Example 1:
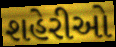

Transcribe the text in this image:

શહેરીઓ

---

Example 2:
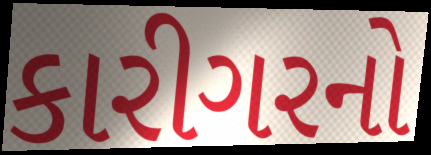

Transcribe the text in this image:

કારીગરનો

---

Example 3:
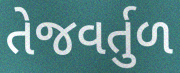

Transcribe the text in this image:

તેજવર્તુળ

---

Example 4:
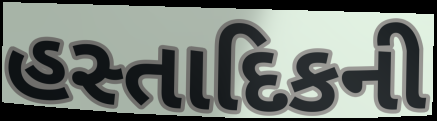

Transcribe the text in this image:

હસ્તાદિકની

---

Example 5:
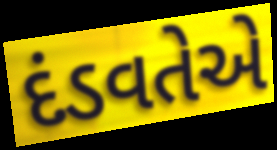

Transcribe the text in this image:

દંડવતેએ